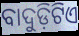
ବାଦୁଡ଼ିଟିଏ